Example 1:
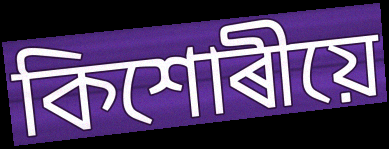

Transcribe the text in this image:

কিশোৰীয়ে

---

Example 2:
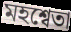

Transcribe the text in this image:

মহশ্বেতা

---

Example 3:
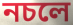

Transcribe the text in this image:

নচলে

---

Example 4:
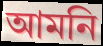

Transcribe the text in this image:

আমনি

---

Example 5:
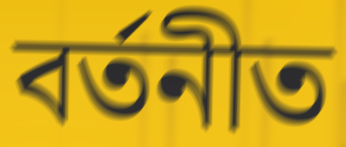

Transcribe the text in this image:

বৰ্তনীত